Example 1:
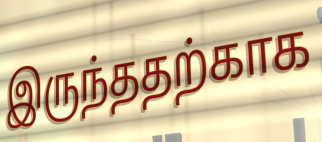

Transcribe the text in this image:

இருந்ததற்காக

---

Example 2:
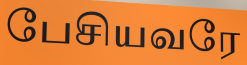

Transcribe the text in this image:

பேசியவரே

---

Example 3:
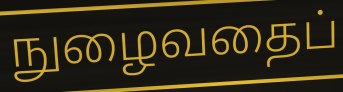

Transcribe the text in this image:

நுழைவதைப்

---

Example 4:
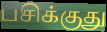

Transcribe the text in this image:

பசிக்குது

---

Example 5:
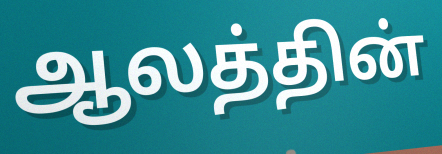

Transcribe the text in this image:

ஆலத்தின்